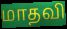
மாதவி